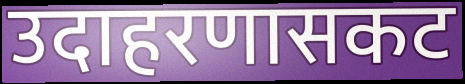
उदाहरणासकट